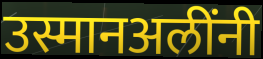
उस्मानअलींनी